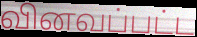
வினவப்பட்ட